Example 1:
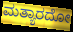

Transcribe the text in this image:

ಮತ್ಯಾರದೋ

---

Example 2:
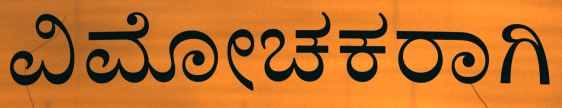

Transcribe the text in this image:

ವಿಮೋಚಕರಾಗಿ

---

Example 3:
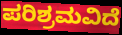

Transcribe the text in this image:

ಪರಿಶ್ರಮವಿದೆ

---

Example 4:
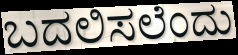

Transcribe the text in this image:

ಬದಲಿಸಲೆಂದು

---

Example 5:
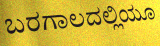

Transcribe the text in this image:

ಬರಗಾಲದಲ್ಲಿಯೂ